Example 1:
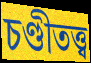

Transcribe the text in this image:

চণ্ডীতত্ত্ব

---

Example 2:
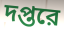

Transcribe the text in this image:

দপ্তরে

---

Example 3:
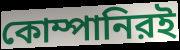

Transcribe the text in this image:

কোম্পানিরই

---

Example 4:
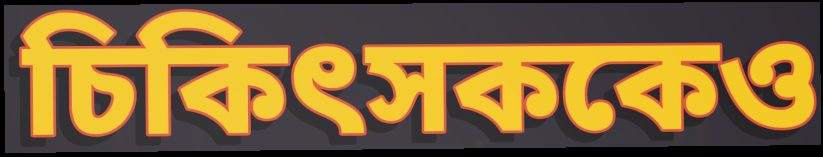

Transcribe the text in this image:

চিকিৎসককেও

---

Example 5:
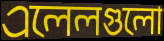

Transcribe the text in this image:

এলেলগুলো